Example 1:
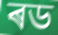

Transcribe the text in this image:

ৰড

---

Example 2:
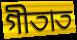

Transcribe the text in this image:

গীতাত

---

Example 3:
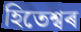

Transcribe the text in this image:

হিতেশ্বৰ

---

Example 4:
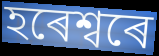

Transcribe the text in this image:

হৰেশ্বৰে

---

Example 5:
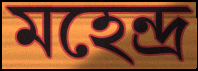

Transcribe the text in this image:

মহেন্দ্ৰ